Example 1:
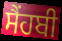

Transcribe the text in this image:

ਸੈਂਹਬੀ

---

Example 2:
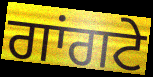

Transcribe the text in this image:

ਗਾਂਗਟੇ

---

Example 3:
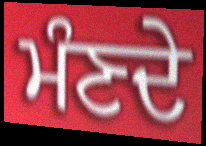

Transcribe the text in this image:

ਮੰਣਦੇ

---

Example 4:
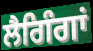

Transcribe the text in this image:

ਲੈਗਿੰਗਾਂ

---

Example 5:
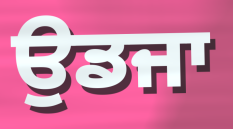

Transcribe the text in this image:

ਉਡਜਾ